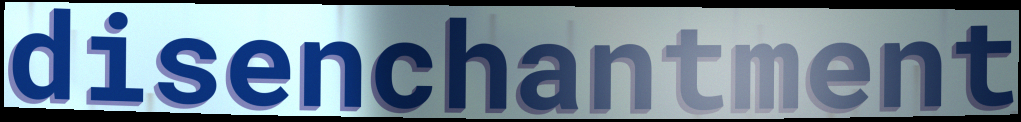
disenchantment